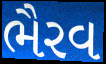
ભૈરવ